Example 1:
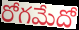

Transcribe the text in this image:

రోగమేదో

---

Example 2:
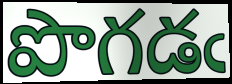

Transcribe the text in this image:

పొగడఁ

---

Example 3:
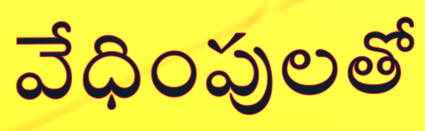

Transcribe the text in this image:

వేధింపులతో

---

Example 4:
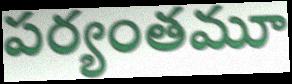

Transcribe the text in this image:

పర్యంతమూ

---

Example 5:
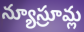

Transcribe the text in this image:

న్యూస్రూమ్ల